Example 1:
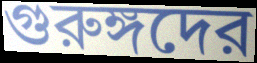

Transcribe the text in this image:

গুরুঙ্গদের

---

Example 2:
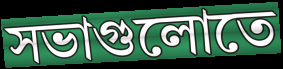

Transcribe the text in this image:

সভাগুলোতে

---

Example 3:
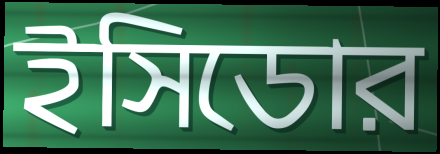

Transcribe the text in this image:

ইসিডোর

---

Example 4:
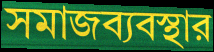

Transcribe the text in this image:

সমাজব্যবস্থার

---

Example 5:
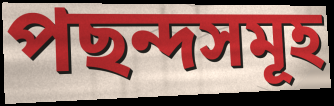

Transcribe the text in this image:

পছন্দসমূহ